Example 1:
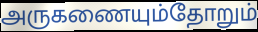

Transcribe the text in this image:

அருகணையும்தோறும்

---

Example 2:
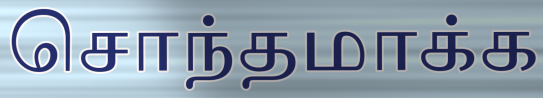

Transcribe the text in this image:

சொந்தமாக்க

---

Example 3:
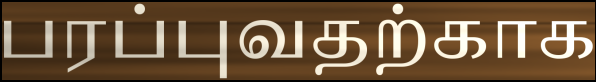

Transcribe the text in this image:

பரப்புவதற்காக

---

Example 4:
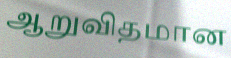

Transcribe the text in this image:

ஆறுவிதமான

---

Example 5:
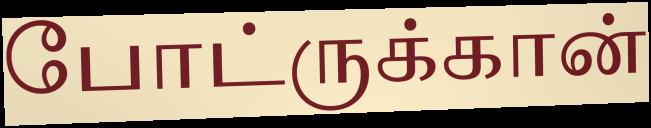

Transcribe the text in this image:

போட்ருக்கான்